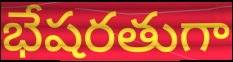
భేషరతుగా